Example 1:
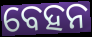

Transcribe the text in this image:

ବେହନ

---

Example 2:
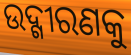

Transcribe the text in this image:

ଉଦ୍ଗୀରଣକୁ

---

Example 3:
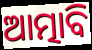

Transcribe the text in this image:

ଆତ୍ମାବି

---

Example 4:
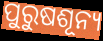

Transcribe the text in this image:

ପୁରୁଷଶୂନ୍ୟ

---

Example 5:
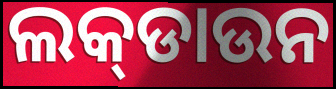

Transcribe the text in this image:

ଲକ୍‌ଡାଉନ